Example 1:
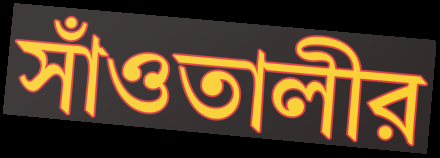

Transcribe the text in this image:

সাঁওতালীর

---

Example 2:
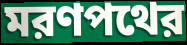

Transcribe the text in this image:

মরণপথের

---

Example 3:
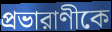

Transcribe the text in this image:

প্রভারাণীকে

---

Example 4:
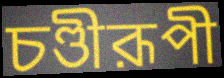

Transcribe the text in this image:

চণ্ডীরূপী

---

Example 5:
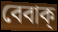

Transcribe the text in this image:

বেবাক্